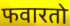
फवारतो